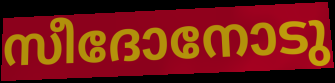
സീദോനോടു